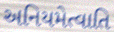
અનિયમેત્વાતિ